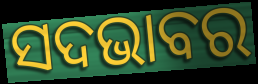
ସଦଭାବର